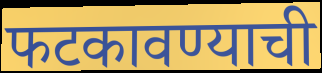
फटकावण्याची